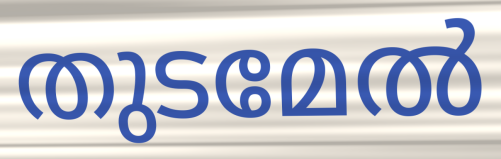
തുടമേൽ